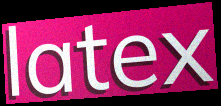
latex